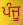
ਪੰਜੂ